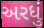
અરધું